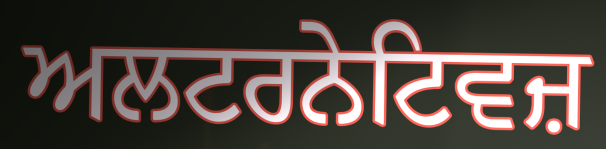
ਅਲਟਰਨੇਟਿਵਜ਼